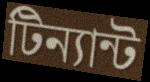
টিন্যান্ট